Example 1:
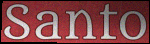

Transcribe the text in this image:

Santo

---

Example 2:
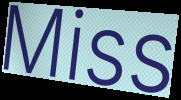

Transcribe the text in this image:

Miss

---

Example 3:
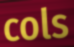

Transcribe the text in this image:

cols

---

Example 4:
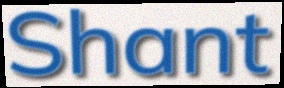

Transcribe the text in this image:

Shant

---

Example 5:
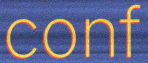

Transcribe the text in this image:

conf